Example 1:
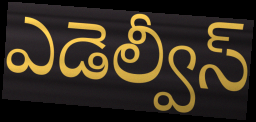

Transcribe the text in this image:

ఎడెల్వీస్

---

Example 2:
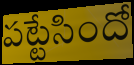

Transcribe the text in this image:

పట్టేసిందో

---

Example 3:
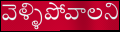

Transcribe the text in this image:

వెళ్ళిపోవాలని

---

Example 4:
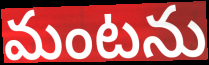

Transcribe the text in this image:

మంటను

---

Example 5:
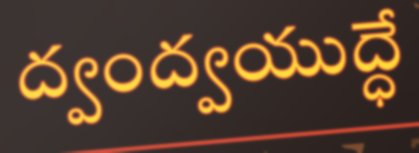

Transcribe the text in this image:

ద్వంద్వయుద్ధే